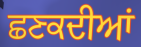
ਛਣਕਦੀਆਂ